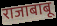
राजाबाबू